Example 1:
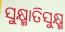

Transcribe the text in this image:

ସୁକ୍ଷ୍ମାତିସୁକ୍ଷ୍ମ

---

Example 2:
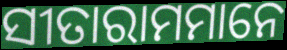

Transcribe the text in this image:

ସୀତାରାମମାନେ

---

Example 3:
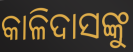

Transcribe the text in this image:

କାଳିଦାସଙ୍କୁ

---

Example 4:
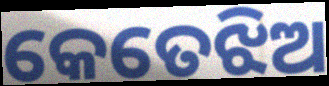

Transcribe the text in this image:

କେତେଝିଅ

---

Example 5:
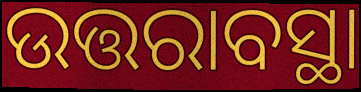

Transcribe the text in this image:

ଉତ୍ତରାବସ୍ଥା